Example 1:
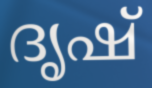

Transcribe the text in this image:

ദൃഷ്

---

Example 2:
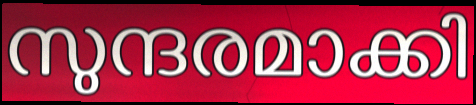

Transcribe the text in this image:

സുന്ദരമാക്കി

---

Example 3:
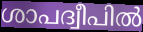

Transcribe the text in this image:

ശാപദ്വീപിൽ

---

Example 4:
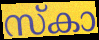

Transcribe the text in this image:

സ്കാ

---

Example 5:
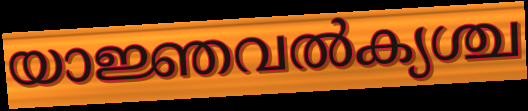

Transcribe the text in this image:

യാജ്ഞവൽക്യശ്ച